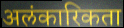
अलंकारिकता